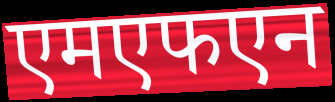
एमएफएन